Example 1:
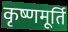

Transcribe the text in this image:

कृष्णमूर्ति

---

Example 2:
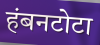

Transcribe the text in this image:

हंबनटोटा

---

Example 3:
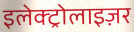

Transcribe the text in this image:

इलेक्ट्रोलाइज़र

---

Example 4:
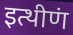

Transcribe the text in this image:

इत्थीणं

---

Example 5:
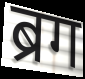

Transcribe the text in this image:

ब्रग